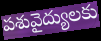
పశువైద్యులకు